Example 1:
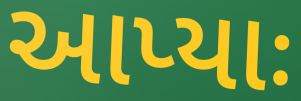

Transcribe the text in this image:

આપ્યાઃ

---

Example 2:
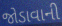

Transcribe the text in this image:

જોડાવાની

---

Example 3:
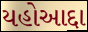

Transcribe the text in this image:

યહોઆદ્દા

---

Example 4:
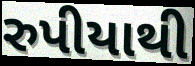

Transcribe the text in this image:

રુપીયાથી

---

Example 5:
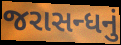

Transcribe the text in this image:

જરાસન્ધનું